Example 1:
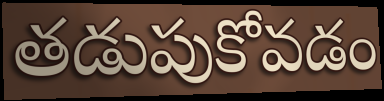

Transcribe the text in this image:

తడుపుకోవడం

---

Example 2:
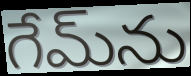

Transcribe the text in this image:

గేమ్‌ను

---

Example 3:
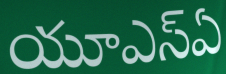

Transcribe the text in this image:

యూఎస్ఏ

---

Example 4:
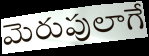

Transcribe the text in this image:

మెరుపులాగే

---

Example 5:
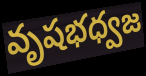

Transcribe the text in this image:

వృషభధ్వజ